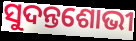
ସୁଦନ୍ତଶୋଭୀ